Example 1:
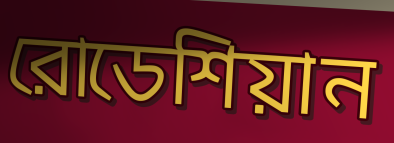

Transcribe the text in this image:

রোডেশিয়ান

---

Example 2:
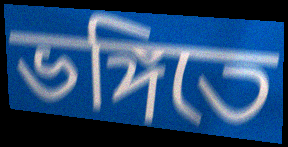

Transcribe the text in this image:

ভঙ্গিতে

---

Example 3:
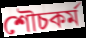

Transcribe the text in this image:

শৌচকর্ম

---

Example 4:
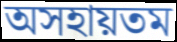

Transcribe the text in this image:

অসহায়তম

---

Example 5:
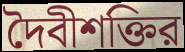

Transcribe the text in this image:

দৈবীশক্তির